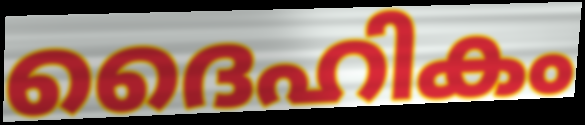
ദൈഹികം